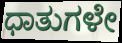
ಧಾತುಗಳೇ